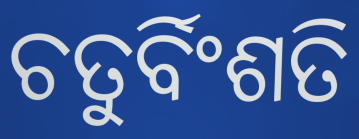
ଚତୁର୍ବିଂଶତି